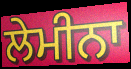
ਲੇਮੀਨਾ